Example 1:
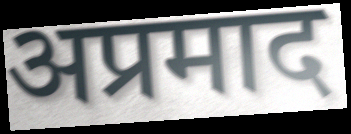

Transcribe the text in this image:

अप्रमाद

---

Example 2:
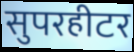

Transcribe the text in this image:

सुपरहीटर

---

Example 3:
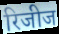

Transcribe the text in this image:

रिजीज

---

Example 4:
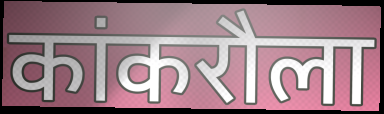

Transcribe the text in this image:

कांकरौला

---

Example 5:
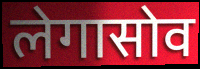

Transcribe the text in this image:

लेगासोव